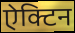
ऐक्टिन